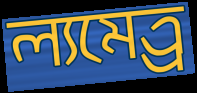
ল্যমেত্র্র